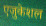
एजुकेशल